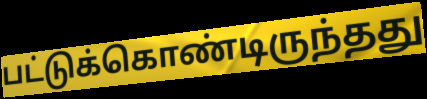
பட்டுக்கொண்டிருந்தது